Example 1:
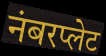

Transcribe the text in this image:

नंबरप्लेट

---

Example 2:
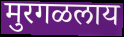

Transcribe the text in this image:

मुरगळलाय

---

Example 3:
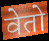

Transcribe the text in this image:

वेतो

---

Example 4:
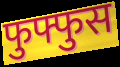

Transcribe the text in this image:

फुफ्फुस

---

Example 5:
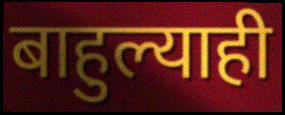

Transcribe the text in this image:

बाहुल्याही